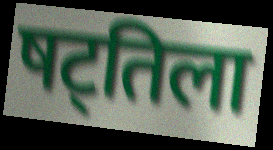
षट्तिला